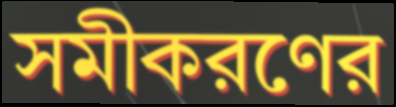
সমীকরণের